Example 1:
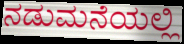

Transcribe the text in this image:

ನಡುಮನೆಯಲ್ಲಿ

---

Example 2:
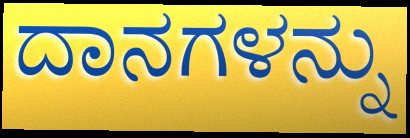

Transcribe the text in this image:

ದಾನಗಳನ್ನು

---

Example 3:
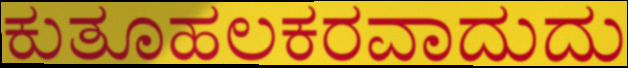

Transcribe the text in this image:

ಕುತೂಹಲಕರವಾದುದು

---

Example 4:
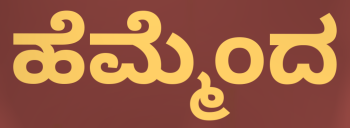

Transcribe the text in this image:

ಹೆಮ್ಮೆಂದ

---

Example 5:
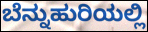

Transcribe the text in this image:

ಬೆನ್ನುಹುರಿಯಲ್ಲಿ